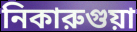
নিকারুগুয়া